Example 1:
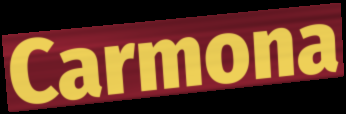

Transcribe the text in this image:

Carmona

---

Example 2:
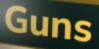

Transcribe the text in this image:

Guns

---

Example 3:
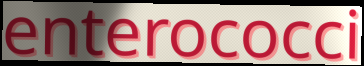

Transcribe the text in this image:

enterococci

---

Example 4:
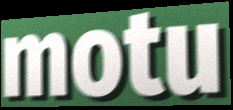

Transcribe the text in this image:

motu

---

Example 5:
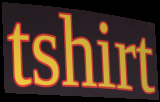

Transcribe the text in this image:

tshirt